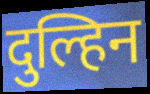
दुल्हिन